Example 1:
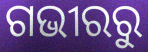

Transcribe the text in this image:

ଗଭୀରରୁ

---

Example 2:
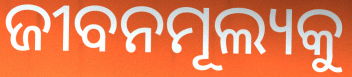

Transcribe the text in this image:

ଜୀବନମୂଲ୍ୟକୁ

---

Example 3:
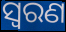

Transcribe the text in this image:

ସ୍ୱରଣ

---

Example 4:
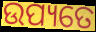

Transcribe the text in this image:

ଉପ୍ୟତେ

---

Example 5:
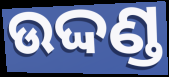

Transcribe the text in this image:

ଉଦ୍ଦଣ୍ଡ